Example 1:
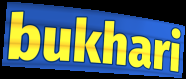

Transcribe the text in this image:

bukhari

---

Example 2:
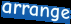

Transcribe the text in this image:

arrange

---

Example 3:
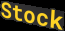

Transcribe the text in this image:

Stock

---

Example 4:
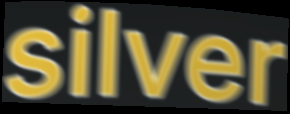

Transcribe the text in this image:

silver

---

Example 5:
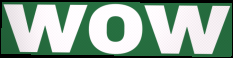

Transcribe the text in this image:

wow